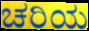
ಚರಿಯ